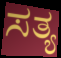
ಸತ್ಯ